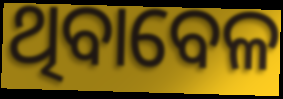
ଥିବାବେଳ